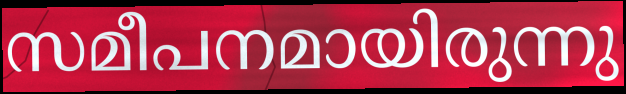
സമീപനമായിരുന്നു